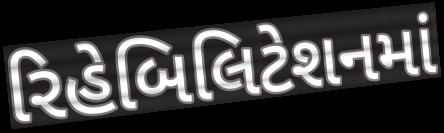
રિહેબિલિટેશનમાં